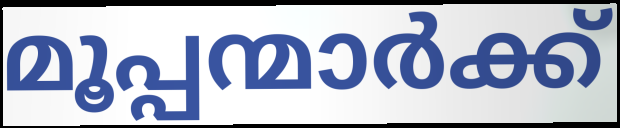
മൂപ്പന്മാർക്ക്